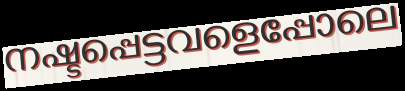
നഷ്ടപ്പെട്ടവളെപ്പോലെ